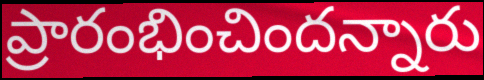
ప్రారంభించిందన్నారు